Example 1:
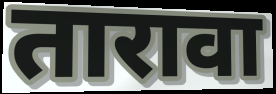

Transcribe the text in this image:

तारावा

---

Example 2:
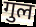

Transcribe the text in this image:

गुल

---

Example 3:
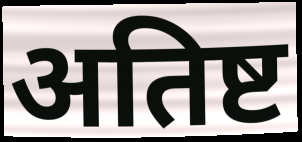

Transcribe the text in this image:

अतिष्ट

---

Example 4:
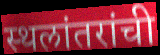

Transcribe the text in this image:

स्थलांतरांची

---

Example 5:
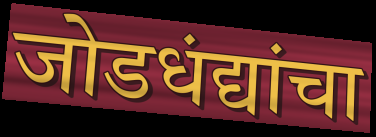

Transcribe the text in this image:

जोडधंद्यांचा